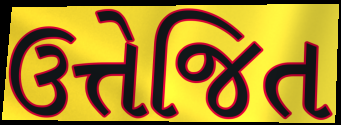
ઉત્તેજિત